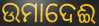
ଉମାଦେଈ